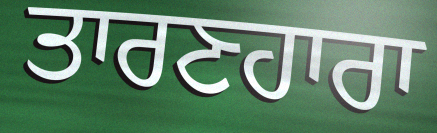
ਤਾਰਣਹਾਰਾ